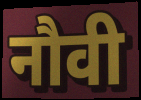
नौवी